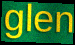
glen